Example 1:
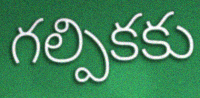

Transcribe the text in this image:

గల్పికకు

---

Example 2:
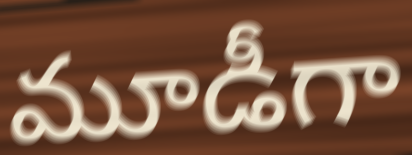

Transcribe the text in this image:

మూడీగా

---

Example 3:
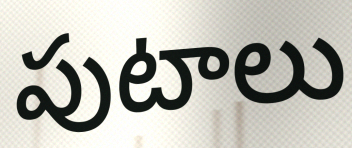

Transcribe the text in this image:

పుటాలు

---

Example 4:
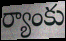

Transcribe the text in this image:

ర్యాంకు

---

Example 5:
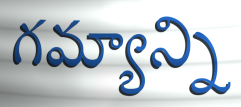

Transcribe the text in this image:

గమ్యాన్ని